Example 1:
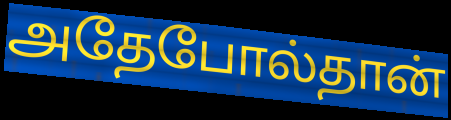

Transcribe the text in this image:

அதேபோல்தான்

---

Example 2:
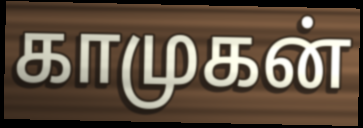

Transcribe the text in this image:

காமுகன்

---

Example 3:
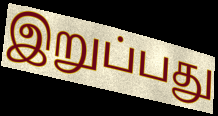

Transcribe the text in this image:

இறுப்பது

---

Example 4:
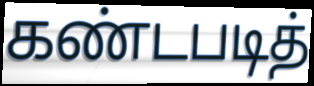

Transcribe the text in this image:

கண்டபடித்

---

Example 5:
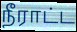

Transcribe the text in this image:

நீராட்ட